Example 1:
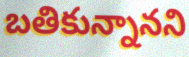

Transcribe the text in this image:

బతికున్నానని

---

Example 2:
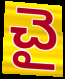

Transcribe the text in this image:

చై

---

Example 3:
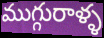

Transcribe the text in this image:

ముగ్గురాళ్ళ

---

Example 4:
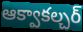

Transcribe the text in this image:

ఆక్వాకల్చర్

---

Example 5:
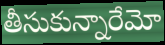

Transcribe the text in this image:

తీసుకున్నారేమో